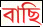
বাছি